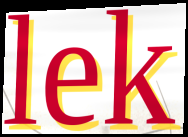
lek